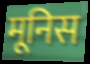
मूनिस